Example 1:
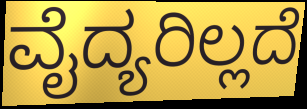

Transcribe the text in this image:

ವೈದ್ಯರಿಲ್ಲದೆ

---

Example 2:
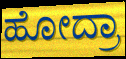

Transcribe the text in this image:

ಹೋದ್ರಾ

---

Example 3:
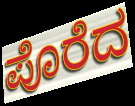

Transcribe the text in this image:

ಪೊರೆದ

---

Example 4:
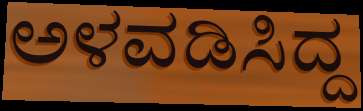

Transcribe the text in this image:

ಅಳವಡಿಸಿದ್ದ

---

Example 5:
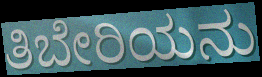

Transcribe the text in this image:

ತಿಬೇರಿಯನು